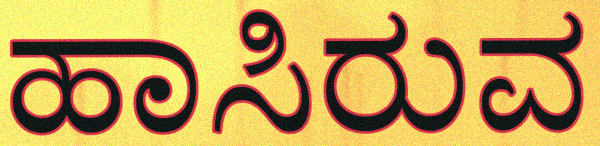
ಹಾಸಿರುವ